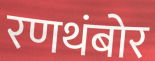
रणथंबोर